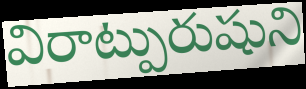
విరాట్పురుషుని